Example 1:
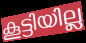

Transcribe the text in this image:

കൂട്ടിയില്ല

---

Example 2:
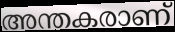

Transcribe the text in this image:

അന്തകരാണ്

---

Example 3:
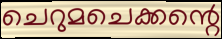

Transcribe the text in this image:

ചെറുമചെക്കന്റെ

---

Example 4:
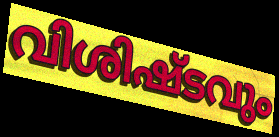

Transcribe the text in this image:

വിശിഷ്ടവും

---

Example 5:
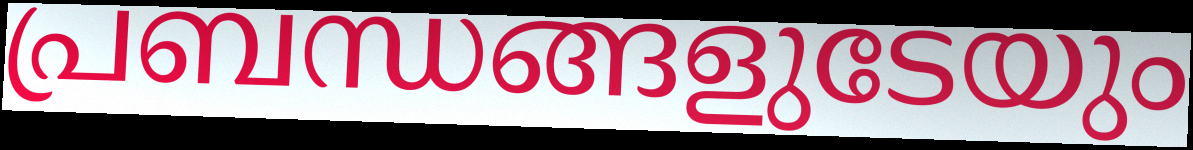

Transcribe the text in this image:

പ്രബന്ധങ്ങളുടേയും